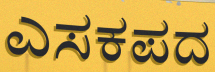
ಎಸಕಪದ